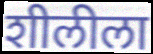
शीलीला